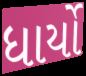
ધાર્યો